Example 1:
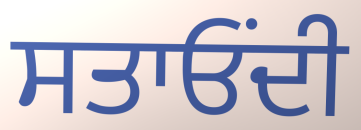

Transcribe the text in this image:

ਸਤਾਓਂਦੀ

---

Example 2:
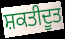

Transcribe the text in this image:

ਸ਼ਕਤੀਦੂਤ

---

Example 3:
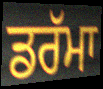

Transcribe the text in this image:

ਡਰੱਮਾ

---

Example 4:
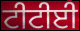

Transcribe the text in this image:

ਟੀਟੀਈ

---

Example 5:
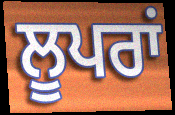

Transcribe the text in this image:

ਲੂਪਰਾਂ